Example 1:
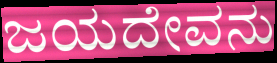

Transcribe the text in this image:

ಜಯದೇವನು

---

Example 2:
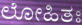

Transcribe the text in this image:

ಲೋಹಿತಃ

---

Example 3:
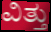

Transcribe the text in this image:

ವಿತ್ತು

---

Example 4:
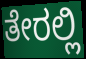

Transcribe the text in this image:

ತೇರಲ್ಲಿ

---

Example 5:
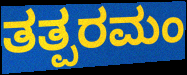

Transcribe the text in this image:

ತತ್ಪರಮಂ